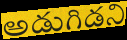
అడుగిడని